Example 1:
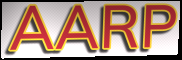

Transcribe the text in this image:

AARP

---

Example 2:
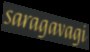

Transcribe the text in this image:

saragavagi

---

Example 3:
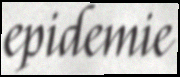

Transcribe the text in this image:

epidemie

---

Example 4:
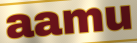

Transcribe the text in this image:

aamu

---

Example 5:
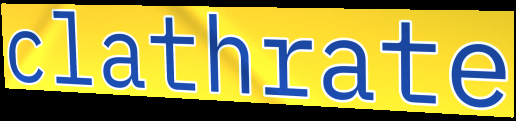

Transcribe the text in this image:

clathrate